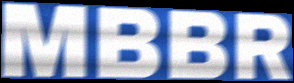
MBBR